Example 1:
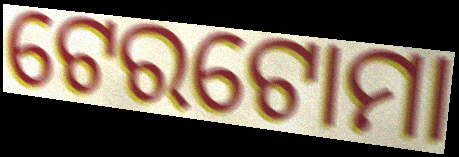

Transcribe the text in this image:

ଟେରଟୋମା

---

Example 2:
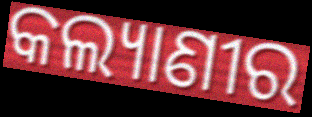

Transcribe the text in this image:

କଲ୍ୟାଣୀର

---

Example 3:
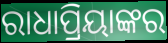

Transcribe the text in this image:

ରାଧାପ୍ରିୟାଙ୍କର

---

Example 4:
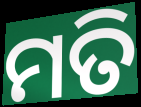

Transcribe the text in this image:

ମତି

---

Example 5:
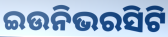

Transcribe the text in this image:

ଇଉନିଭରସିଟି